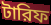
টারিফ